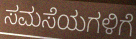
ಸಮಸೆಯಗಳಿಗೆ